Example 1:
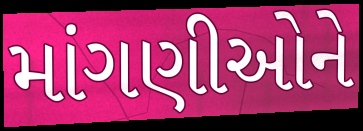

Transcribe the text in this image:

માંગણીઓને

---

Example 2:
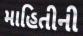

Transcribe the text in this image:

માહિતીની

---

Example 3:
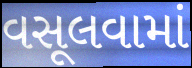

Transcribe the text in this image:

વસૂલવામાં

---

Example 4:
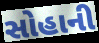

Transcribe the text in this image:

સોહાની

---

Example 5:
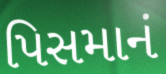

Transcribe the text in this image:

પિસમાનં